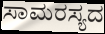
ಸಾಮರಸ್ಯದ